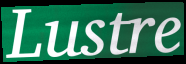
Lustre